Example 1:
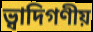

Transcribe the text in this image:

ভ্বাদিগণীয়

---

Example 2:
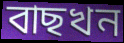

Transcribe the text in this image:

বাছখন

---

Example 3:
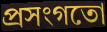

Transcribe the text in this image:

প্ৰসংগতো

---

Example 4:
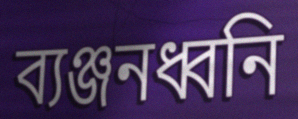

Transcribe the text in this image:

ব্যঞ্জনধ্বনি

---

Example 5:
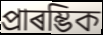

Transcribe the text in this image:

প্ৰাৰম্ভিক